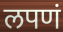
लपणं